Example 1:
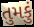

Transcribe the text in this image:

તુમકું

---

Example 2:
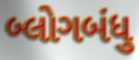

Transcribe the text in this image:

બ્લોગબંધુ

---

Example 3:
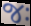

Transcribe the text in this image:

જઃ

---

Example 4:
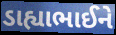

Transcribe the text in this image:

ડાહ્યાભાઈને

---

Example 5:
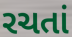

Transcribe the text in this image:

રચતાં